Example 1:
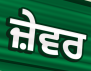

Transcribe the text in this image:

ਜ਼ੇਵਰ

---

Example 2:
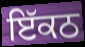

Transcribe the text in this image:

ਇੱਕਠ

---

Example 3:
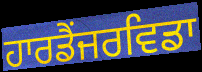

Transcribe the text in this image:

ਹਾਰਡੈਂਜਰਵਿਡਾ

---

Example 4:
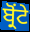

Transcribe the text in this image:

ਬ੍ਰੋਂਟੇ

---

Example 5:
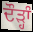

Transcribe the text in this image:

ਦੌੜ੍ਹਾੰ